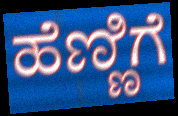
ಹೆಣ್ಣಿಗೆ